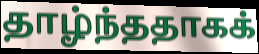
தாழ்ந்ததாகக்